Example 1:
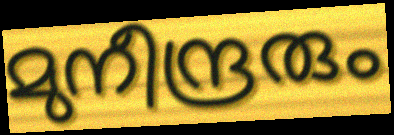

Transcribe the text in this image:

മുനീന്ദ്രരും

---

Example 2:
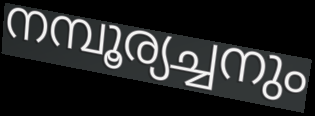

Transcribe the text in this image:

നമ്പൂര്യച്ചനും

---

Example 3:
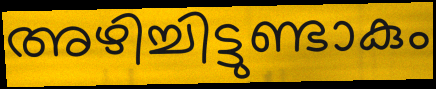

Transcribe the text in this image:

അഴിച്ചിട്ടുണ്ടാകും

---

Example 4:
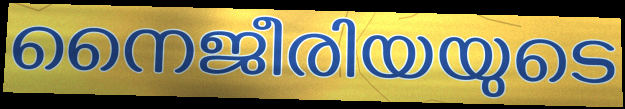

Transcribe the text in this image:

നൈജീരിയയുടെ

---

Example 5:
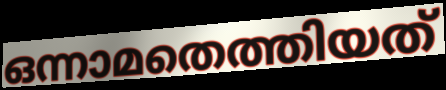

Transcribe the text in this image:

ഒന്നാമതെത്തിയത്